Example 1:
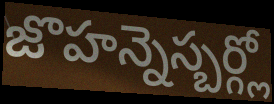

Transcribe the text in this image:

జొహన్నెస్బర్గ్లో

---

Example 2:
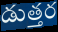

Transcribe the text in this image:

డుత్తర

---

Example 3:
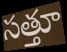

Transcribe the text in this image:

సత్తూ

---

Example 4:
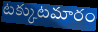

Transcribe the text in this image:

టక్కుటమారం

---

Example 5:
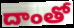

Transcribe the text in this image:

దాంతో